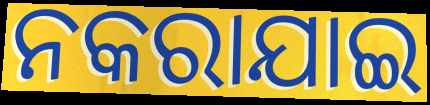
ନକରାଯାଇ